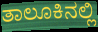
ತಾಲೂಕಿನಲ್ಲಿ